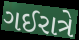
ગઈરાત્રે